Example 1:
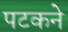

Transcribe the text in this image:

पटकने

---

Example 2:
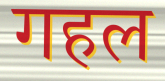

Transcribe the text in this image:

गहल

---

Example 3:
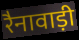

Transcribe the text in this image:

रैनावाड़ी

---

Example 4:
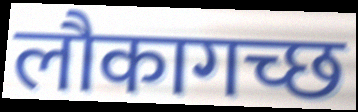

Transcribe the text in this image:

लौकागच्छ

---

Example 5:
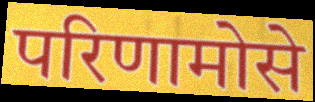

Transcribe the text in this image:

परिणामोसे